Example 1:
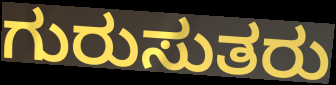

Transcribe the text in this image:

ಗುರುಸುತರು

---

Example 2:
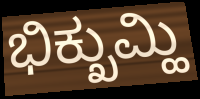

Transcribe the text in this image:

ಭಿಕ್ಖುಮ್ಹಿ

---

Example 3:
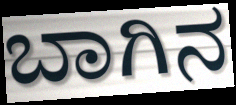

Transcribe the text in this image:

ಬಾಗಿನ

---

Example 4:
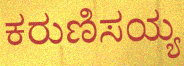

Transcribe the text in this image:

ಕರುಣಿಸಯ್ಯ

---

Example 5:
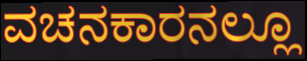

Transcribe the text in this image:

ವಚನಕಾರನಲ್ಲೂ